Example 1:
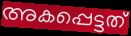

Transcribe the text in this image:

അകപ്പെട്ടത്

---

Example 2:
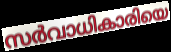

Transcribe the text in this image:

സർവാധികാരിയെ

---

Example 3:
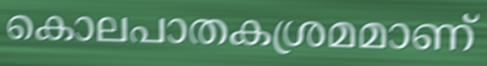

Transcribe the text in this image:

കൊലപാതകശ്രമമാണ്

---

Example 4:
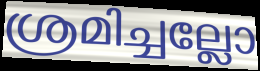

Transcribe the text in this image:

ശ്രമിച്ചല്ലോ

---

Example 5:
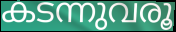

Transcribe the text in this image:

കടന്നുവരൂ